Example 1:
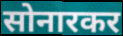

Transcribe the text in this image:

सोनारकर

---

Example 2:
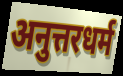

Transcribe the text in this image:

अनुत्तरधर्म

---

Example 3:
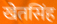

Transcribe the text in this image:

खेतसिंह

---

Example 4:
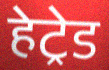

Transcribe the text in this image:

हेट्रेड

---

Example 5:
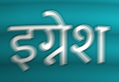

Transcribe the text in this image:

इग्नेश